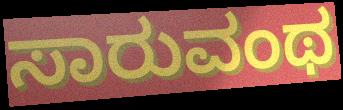
ಸಾರುವಂಥ